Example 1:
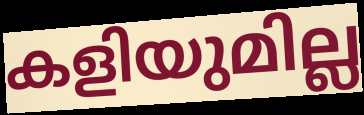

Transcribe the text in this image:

കളിയുമില്ല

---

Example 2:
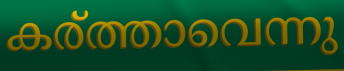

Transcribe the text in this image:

കര്ത്താവെന്നു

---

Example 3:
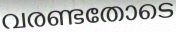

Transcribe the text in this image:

വരണ്ടതോടെ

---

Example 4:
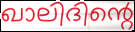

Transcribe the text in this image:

ഖാലിദിന്റെ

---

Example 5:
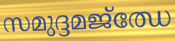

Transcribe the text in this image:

സമുദ്ദമജ്ഝേ